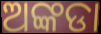
ଅଙ୍କଡା